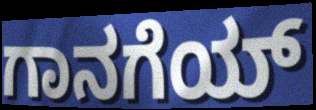
ಗಾನಗೆಯ್